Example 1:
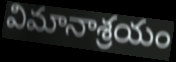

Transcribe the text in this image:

విమానాశ్రయం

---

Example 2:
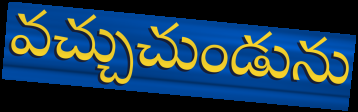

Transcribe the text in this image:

వచ్చుచుండును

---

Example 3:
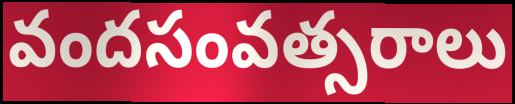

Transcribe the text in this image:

వందసంవత్సరాలు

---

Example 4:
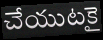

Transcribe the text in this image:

చేయుటకై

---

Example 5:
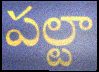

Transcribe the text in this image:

పల్టా